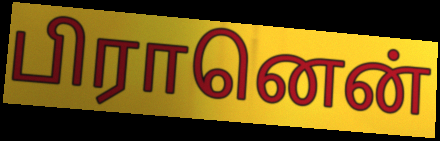
பிரானென்